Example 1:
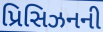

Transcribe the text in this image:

પ્રિસિઝનની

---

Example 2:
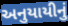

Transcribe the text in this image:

અનુયાયીનું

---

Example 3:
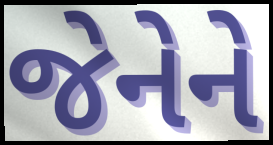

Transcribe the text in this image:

જેનેને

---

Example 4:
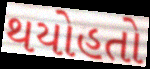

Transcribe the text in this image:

થયોહતો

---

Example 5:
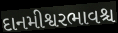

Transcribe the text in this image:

દાનમીશ્વરભાવશ્ચ